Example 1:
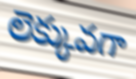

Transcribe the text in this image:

లెక్కువగా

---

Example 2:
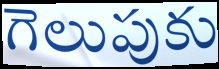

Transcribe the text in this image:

గెలుపుకు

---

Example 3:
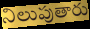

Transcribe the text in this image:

నిలుపుతారు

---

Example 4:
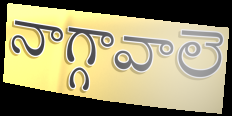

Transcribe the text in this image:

నాగ్గావాలె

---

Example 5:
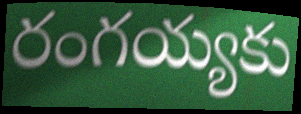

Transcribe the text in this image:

రంగయ్యకు